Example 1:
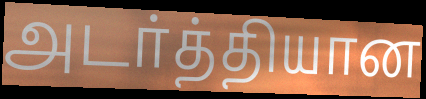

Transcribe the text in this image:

அடர்த்தியான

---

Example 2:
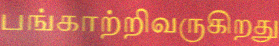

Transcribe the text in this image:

பங்காற்றிவருகிறது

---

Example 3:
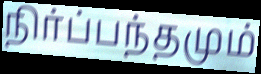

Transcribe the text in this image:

நிர்ப்பந்தமும்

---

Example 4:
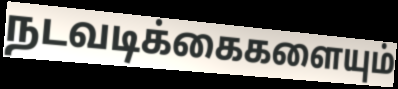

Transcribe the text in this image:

நடவடிக்கைகளையும்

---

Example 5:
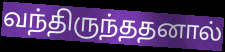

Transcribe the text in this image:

வந்திருந்ததனால்